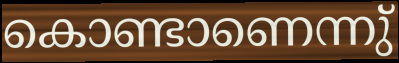
കൊണ്ടാണെന്നു്